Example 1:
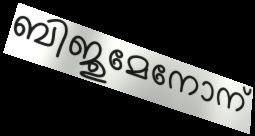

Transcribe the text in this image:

ബിജുമേനോന്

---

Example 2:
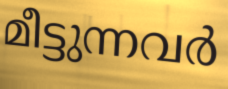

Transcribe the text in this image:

മീട്ടുന്നവർ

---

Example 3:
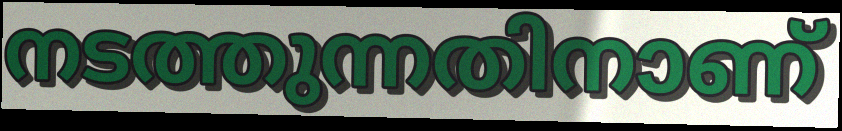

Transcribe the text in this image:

നടത്തുന്നതിനാണ്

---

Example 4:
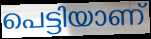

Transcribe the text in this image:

പെട്ടിയാണ്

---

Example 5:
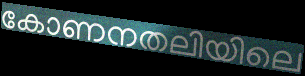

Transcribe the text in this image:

കോണനതലിയിലെ